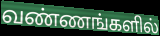
வண்ணங்களில்